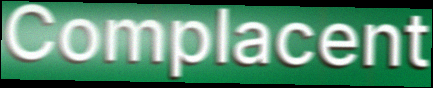
Complacent